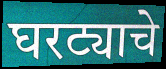
घरट्याचे